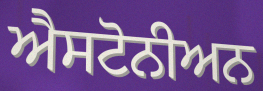
ਐਸਟੋਨੀਅਨ